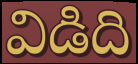
విడిది